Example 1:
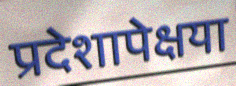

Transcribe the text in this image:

प्रदेशापेक्षया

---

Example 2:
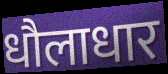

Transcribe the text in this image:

धौलाधार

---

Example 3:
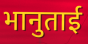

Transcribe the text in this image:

भानुताई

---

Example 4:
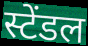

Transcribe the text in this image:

स्टेंडल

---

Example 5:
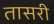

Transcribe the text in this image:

तासरी